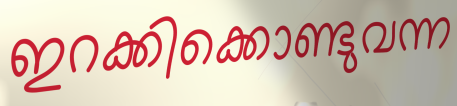
ഇറക്കിക്കൊണ്ടുവന്ന